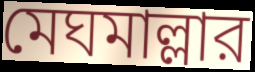
মেঘমাল্লার